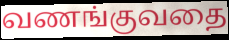
வணங்குவதை